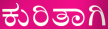
ಕುರಿತಾಗಿ